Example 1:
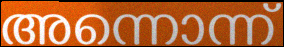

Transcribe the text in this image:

അന്നൊന്ന്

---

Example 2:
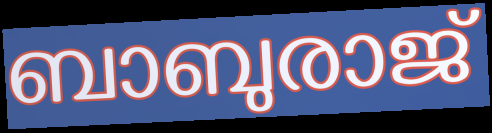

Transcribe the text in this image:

ബാബുരാജ്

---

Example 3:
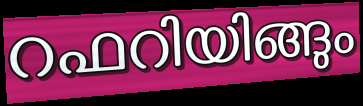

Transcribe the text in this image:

റഫറിയിങ്ങും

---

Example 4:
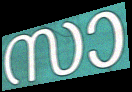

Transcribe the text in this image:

സാ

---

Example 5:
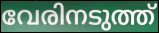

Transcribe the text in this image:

വേരിനടുത്ത്